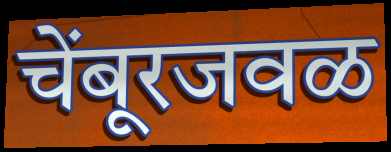
चेंबूरजवळ